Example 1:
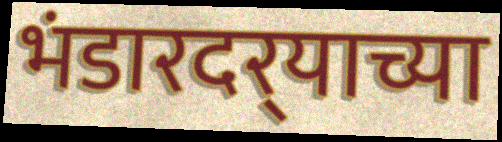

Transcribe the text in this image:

भंडारदर्‍याच्या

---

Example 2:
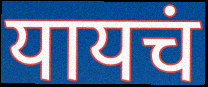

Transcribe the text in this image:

यायचं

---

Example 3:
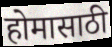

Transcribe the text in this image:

होमासाठी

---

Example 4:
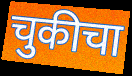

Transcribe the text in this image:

चुकीचा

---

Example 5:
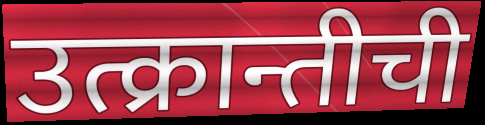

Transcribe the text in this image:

उत्क्रान्तीची